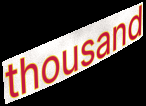
thousand